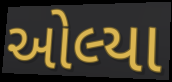
ઓલ્યા